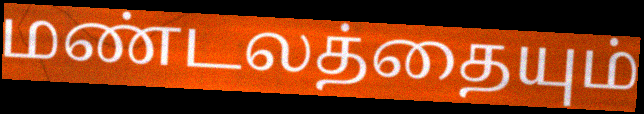
மண்டலத்தையும்